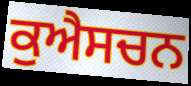
ਕੁਐਸਚਨ